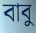
বাবু